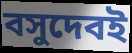
বসুদেবই